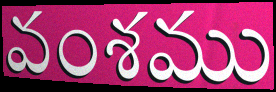
వంశము